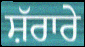
ਸ਼ੱਰਾਰੇ